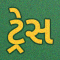
ટ્રેસ